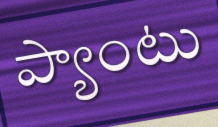
ప్యాంటు